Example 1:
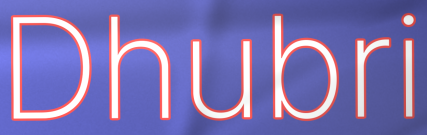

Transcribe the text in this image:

Dhubri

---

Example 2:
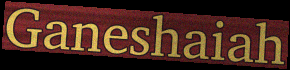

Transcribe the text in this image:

Ganeshaiah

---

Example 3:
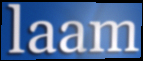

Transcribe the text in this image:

laam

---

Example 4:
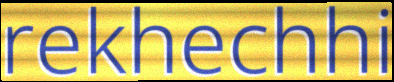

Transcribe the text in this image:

rekhechhi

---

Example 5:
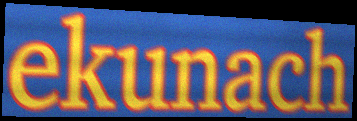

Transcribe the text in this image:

ekunach